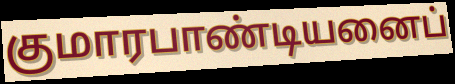
குமாரபாண்டியனைப்